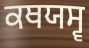
ਕਥਯਸ੍ਵ